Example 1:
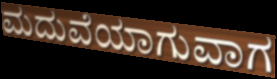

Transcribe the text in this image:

ಮದುವೆಯಾಗುವಾಗ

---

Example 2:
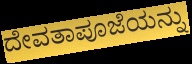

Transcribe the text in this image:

ದೇವತಾಪೂಜೆಯನ್ನು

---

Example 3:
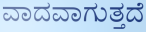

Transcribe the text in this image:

ವಾದವಾಗುತ್ತದೆ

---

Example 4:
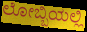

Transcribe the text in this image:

ಲೋಬ್ಬಿಯಲ್ಲಿ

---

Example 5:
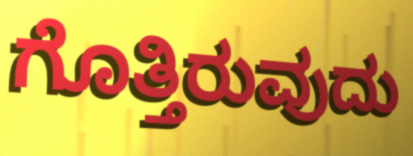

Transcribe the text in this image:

ಗೊತ್ತಿರುವುದು